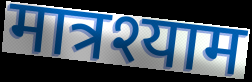
मात्रश्याम